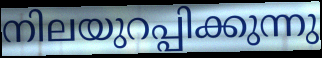
നിലയുറപ്പിക്കുന്നു